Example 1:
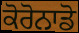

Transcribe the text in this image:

ਕੋਰੋਨਾਡੋ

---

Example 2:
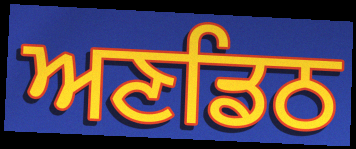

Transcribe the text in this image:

ਅਣਡਿਠ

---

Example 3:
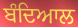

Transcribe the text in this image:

ਬੰਦਿਆਲ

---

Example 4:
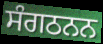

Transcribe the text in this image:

ਸੰਗਠਨਨ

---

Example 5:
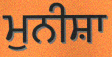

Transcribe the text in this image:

ਮੁਨੀਸ਼ਾ